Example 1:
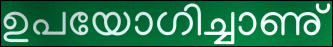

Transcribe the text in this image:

ഉപയോഗിച്ചാണു്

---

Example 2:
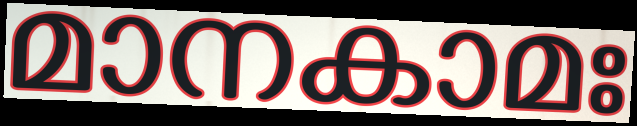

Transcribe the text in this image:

മാനകാമഃ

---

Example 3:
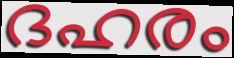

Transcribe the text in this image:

ദഹരം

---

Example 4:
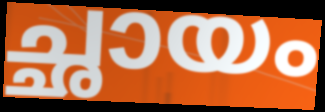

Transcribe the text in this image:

ച്ഛായം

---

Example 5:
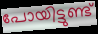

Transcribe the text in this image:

പോയിട്ടുണ്ട്